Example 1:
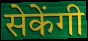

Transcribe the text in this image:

सेकेंगी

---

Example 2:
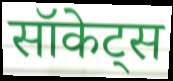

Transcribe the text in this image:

सॉकेट्स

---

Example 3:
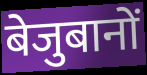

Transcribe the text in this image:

बेजुबानों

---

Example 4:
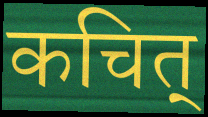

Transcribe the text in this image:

कचित्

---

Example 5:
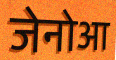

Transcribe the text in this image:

जेनोआ